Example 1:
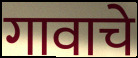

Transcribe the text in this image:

गावाचे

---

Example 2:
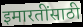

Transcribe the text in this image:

इमारतींसाठी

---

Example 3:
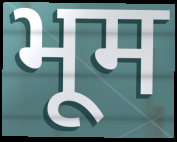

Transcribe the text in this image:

भूम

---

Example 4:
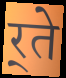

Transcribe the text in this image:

र्ते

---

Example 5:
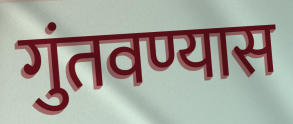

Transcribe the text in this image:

गुंतवण्यास